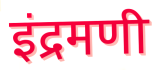
इंद्रमणी